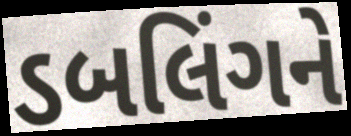
ડબલિંગને